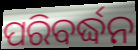
ପରିବର୍ଦ୍ଧନ